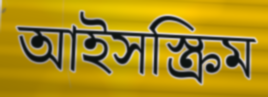
আইসস্ক্রিম